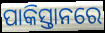
ପାକିସ୍ତାନରେ